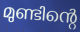
മുണ്ടിന്റെ